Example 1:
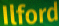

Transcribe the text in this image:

Ilford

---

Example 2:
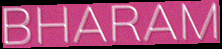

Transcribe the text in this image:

BHARAM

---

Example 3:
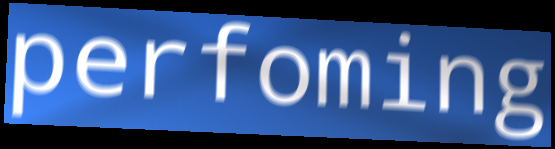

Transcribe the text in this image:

perfoming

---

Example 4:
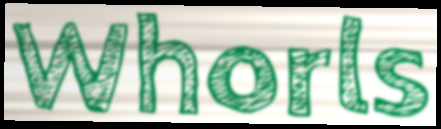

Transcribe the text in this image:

Whorls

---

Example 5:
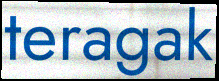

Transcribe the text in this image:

teragak